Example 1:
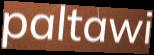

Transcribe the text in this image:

paltawi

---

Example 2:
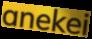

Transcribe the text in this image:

anekei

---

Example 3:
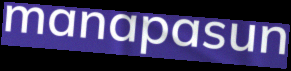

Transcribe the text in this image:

manapasun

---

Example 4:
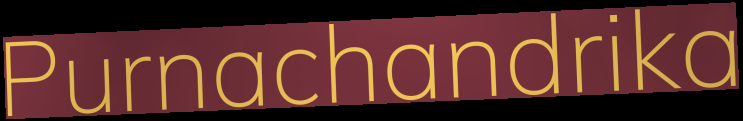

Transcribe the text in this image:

Purnachandrika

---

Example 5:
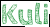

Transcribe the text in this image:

Kuli